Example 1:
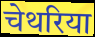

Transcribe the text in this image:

चेथरिया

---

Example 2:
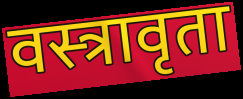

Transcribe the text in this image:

वस्त्रावृता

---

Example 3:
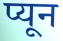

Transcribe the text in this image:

प्यून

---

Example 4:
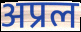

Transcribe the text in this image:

अप्रल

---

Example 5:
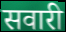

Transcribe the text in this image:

सवारी